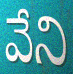
వేని